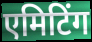
एमिटिंग